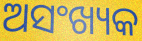
ଅସଂଖ୍ୟକ